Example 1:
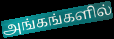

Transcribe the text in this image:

அங்கங்களில்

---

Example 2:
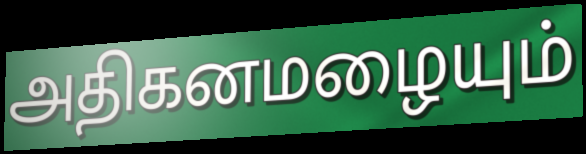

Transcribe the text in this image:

அதிகனமழையும்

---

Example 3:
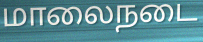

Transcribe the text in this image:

மாலைநடை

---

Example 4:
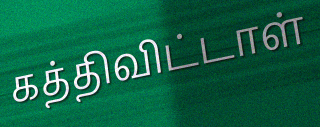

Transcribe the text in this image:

கத்திவிட்டாள்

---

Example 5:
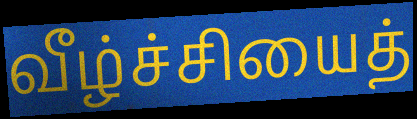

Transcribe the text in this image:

வீழ்ச்சியைத்